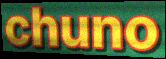
chuno